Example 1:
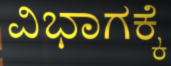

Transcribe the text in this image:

ವಿಭಾಗಕ್ಕೆ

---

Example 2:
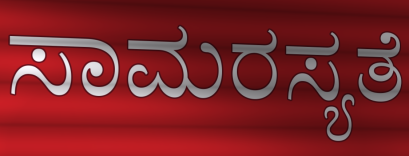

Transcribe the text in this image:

ಸಾಮರಸ್ಯತೆ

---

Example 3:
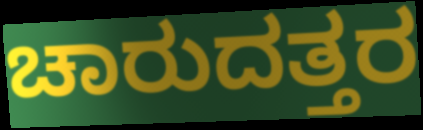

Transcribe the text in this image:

ಚಾರುದತ್ತರ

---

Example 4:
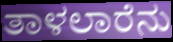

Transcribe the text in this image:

ತಾಳಲಾರೆನು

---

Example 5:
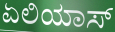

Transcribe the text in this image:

ಏಲಿಯಾಸ್